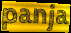
panja